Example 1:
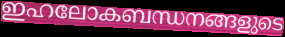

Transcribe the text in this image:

ഇഹലോകബന്ധനങ്ങളുടെ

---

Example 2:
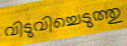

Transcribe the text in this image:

വിടുവിച്ചെടുത്തു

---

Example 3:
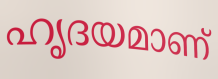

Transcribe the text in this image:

ഹൃദയമാണ്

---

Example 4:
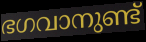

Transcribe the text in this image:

ഭഗവാനുണ്ട്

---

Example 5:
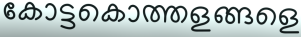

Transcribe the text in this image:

കോട്ടകൊത്തളങ്ങളെ